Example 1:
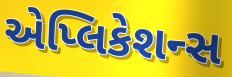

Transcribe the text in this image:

એપ્લિકેશન્સ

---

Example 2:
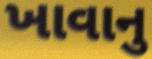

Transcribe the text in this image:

ખાવાનુ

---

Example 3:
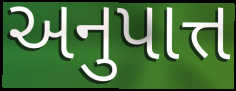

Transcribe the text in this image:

અનુપાત્ત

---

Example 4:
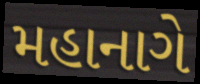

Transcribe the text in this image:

મહાનાગે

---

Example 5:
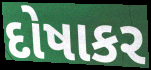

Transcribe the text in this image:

દોષાકર